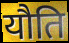
यौति